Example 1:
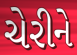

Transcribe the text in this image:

ચેરીને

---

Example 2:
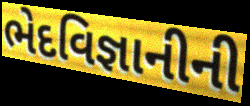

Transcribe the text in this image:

ભેદવિજ્ઞાનીની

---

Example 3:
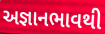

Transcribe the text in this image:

અજ્ઞાનભાવથી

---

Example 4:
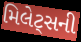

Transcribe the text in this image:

મિલેટ્સની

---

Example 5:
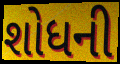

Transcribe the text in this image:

શોધની